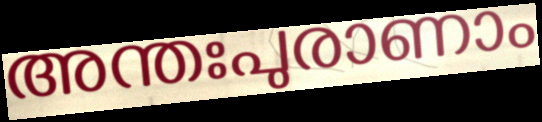
അന്തഃപുരാണാം